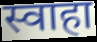
स्‍वाहा